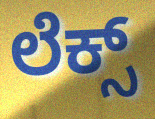
ಲೆಕ್ಸ್